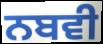
ਨਬਵੀ